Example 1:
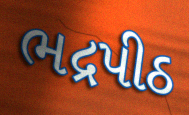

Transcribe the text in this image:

ભદ્રપીઠ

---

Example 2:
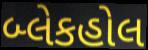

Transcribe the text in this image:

બ્લેકહોલ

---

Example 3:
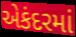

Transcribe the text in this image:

એકંદરમાં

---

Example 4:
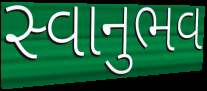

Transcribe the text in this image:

સ્વાનુભવ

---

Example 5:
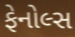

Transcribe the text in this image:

ફેનોલ્સ